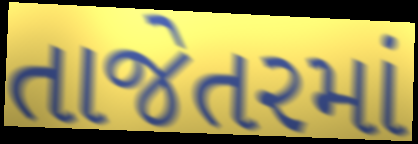
તાજેતરમાં